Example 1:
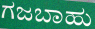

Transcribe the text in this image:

ಗಜಬಾಹು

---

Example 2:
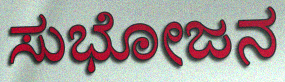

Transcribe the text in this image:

ಸುಭೋಜನ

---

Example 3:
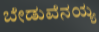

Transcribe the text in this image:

ಬೇಡುವೆನಯ್ಯ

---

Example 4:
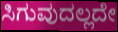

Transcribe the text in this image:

ಸಿಗುವುದಲ್ಲದೇ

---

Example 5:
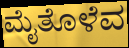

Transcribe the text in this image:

ಮೈತೊಳೆವ